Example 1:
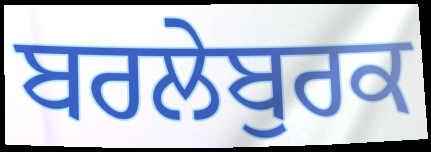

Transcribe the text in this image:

ਬਰਲੇਬੁਰਕ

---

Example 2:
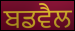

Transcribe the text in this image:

ਬਡਵੈਲ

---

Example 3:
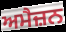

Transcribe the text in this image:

ਅਮੈਜ਼ਨ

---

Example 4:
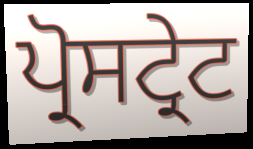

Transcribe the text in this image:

ਪ੍ਰੋਸਟ੍ਰੇਟ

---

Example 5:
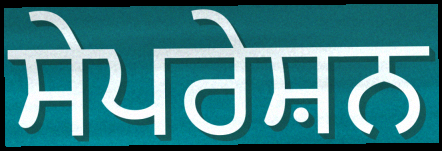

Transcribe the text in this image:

ਸੇਪਰੇਸ਼ਨ